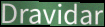
Dravidar